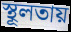
স্থূলতায়